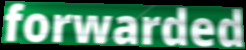
forwarded